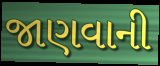
જાણવાની